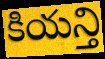
కియన్తి